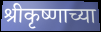
श्रीकृष्णाच्या